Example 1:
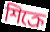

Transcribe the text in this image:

শিক্রে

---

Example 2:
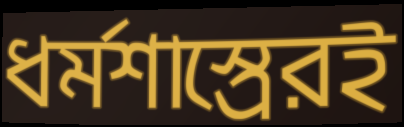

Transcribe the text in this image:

ধর্মশাস্ত্রেরই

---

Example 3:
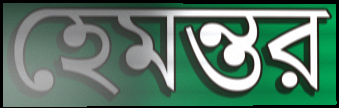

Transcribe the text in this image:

হেমন্তর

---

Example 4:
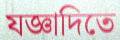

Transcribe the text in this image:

যজ্ঞাদিতে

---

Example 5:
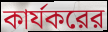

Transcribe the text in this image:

কার্যকরের